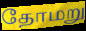
தோமறு